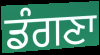
ਡੰਗਣਾ